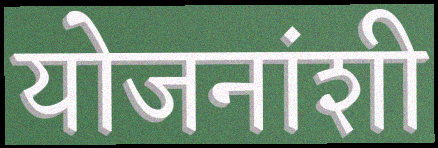
योजनांशी